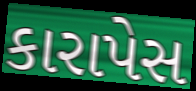
કારાપેસ